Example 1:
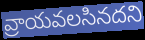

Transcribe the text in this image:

వ్రాయవలసినదని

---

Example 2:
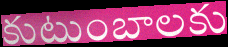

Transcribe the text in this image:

కుటుంబాలకు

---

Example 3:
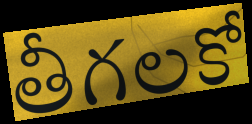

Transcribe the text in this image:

తీగలకో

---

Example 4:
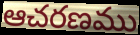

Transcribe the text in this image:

ఆచరణము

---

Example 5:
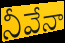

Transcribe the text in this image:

నీవేనా